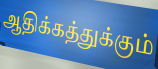
ஆதிக்கத்துக்கும்